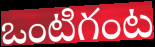
ఒంటిగంట